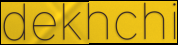
dekhchi